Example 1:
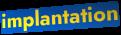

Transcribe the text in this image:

implantation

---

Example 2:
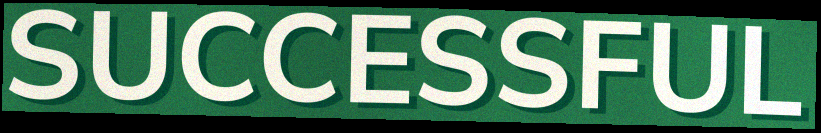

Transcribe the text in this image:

SUCCESSFUL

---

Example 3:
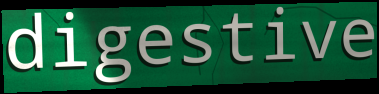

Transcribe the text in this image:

digestive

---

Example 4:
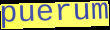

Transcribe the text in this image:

puerum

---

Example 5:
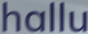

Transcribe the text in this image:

hallu